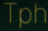
Tph